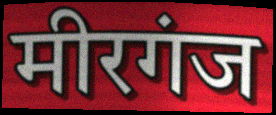
मीरगंज